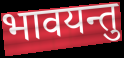
भावयन्तु